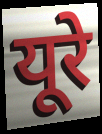
यूरे